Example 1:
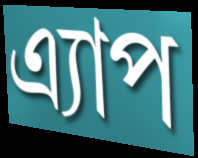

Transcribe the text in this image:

এ্যাপ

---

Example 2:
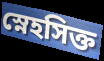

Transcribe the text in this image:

স্নেহসিক্ত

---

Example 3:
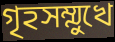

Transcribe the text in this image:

গৃহসম্মুখে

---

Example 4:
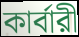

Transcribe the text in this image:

কার্বারী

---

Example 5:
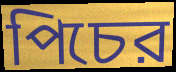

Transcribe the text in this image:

পিচের